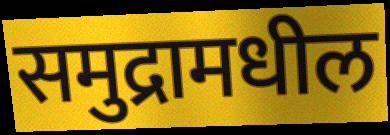
समुद्रामधील